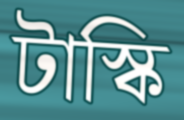
টাস্কি